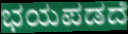
ಭಯಪಡದೆ